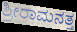
ಶ್ರೀರಾಮನತ್ತ